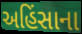
અહિંસાના